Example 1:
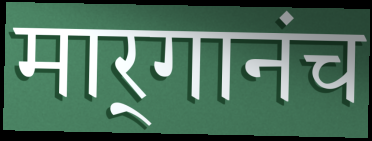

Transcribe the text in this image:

मार्गानंच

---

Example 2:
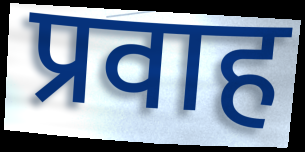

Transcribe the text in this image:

प्रवाह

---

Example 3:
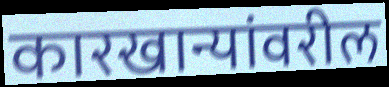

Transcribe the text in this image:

कारखान्यांवरील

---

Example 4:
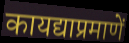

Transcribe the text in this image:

कायद्याप्रमाणें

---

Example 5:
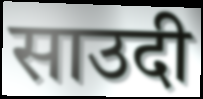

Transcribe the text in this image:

साउदी